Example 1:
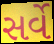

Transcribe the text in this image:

સર્વે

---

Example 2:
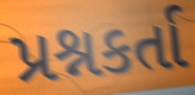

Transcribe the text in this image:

પ્રશ્નકર્તા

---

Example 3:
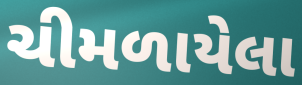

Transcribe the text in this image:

ચીમળાયેલા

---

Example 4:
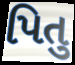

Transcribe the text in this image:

પિતુ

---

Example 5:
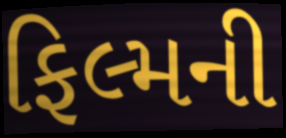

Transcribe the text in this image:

ફિલ્મની